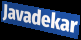
Javadekar